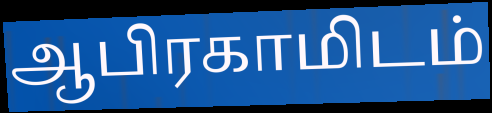
ஆபிரகாமிடம்